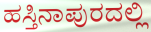
ಹಸ್ತಿನಾಪುರದಲ್ಲಿ